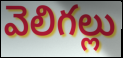
వెలిగల్లు